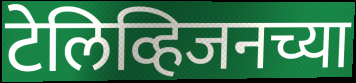
टेलिव्हिजनच्या